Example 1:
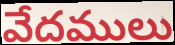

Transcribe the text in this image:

వేదములు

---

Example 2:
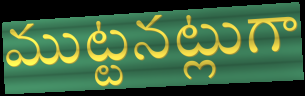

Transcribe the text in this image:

ముట్టనట్లుగా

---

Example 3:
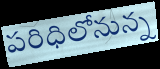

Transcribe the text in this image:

పరిధిలోనున్న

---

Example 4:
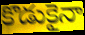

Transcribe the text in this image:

కొడుకైనా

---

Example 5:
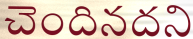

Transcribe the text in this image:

చెందినదని